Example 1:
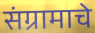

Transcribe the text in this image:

संग्रामाचे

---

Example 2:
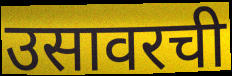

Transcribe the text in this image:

उसावरची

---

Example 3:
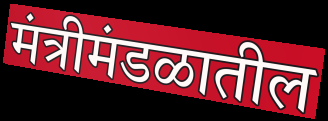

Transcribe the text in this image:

मंत्रीमंडळातील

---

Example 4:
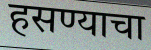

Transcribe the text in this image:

हसण्याचा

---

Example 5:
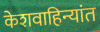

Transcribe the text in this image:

केशवाहिन्यांत